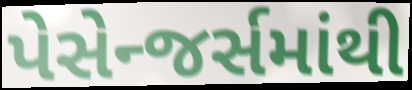
પેસેન્જર્સમાંથી